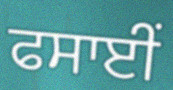
ਫਸਾਈਂ